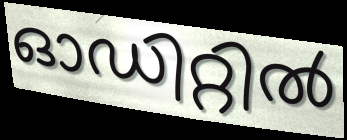
ഓഡിറ്റിൽ